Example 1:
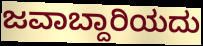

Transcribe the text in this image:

ಜವಾಬ್ದಾರಿಯದು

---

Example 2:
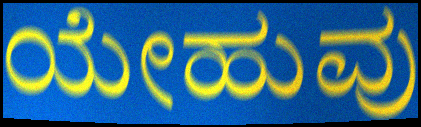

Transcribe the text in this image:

ಯೇಹುವು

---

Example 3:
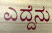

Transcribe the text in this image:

ಎದ್ದೆನು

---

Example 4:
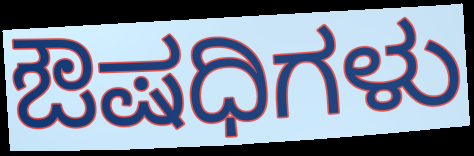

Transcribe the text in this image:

ಔಷಧಿಗಳು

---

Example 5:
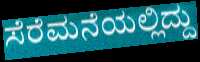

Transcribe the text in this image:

ಸೆರೆಮನೆಯಲ್ಲಿದ್ದು